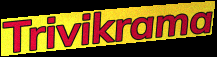
Trivikrama